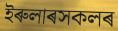
ইৰুলাৰসকলৰ